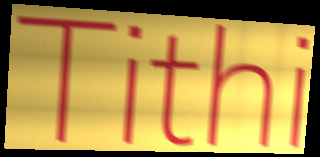
Tithi